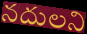
నదులని